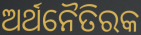
ଅର୍ଥନୈତିରକ